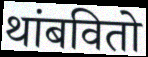
थांबवितो